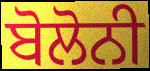
ਬੋਲੋਨੀ